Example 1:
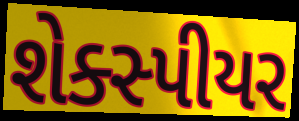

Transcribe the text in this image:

શેક્સ્પીયર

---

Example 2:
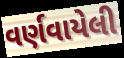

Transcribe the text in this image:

વર્ણવાયેલી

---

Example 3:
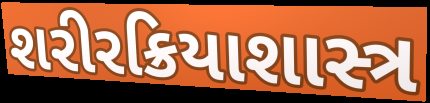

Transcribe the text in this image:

શરીરક્રિયાશાસ્ત્ર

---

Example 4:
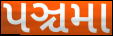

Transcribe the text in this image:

પઞ્ચમા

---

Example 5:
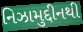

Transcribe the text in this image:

નિઝામુદ્દીનથી